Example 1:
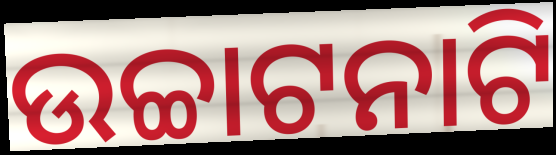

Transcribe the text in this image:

ଉଚ୍ଚାଟନାଟି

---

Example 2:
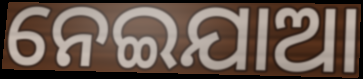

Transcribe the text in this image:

ନେଇଯାଆ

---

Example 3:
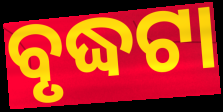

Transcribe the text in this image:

ବୃଦ୍ଧଟା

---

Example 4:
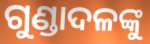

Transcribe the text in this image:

ଗୁଣ୍ଡାଦଳଙ୍କୁ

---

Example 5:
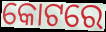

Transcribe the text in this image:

କୋଟରେ